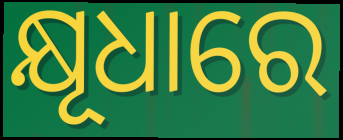
କ୍ଷୂଧାରେ